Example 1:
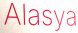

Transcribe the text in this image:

Alasya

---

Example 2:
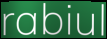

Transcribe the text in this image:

rabiul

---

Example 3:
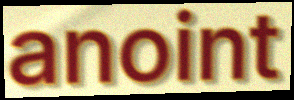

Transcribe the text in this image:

anoint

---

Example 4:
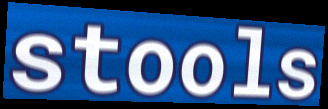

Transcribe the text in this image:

stools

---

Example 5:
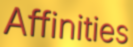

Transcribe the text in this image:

Affinities